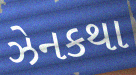
ઝેનકથા